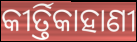
କୀର୍ତ୍ତିକାହାଣୀ